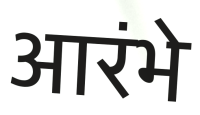
आरंभे